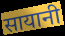
सायानी